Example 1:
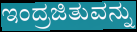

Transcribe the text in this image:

ಇಂದ್ರಜಿತುವನ್ನು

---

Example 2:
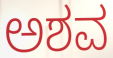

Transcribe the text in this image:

ಅಶವ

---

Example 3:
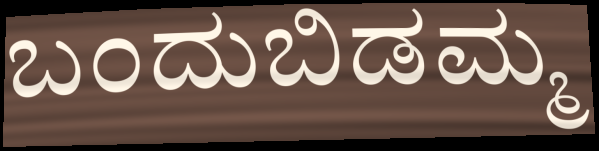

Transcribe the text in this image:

ಬಂದುಬಿಡಮ್ಮ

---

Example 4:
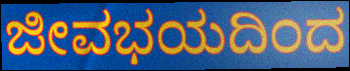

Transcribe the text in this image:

ಜೀವಭಯದಿಂದ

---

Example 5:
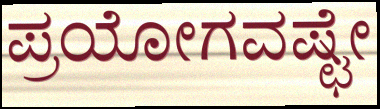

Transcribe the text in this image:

ಪ್ರಯೋಗವಷ್ಟೇ